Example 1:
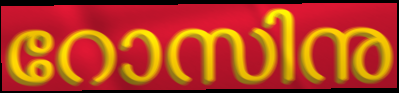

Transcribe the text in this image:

റോസിനു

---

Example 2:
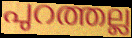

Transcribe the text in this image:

പുറത്തല്ല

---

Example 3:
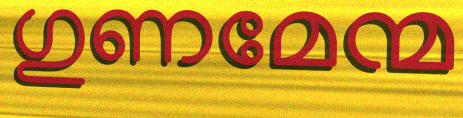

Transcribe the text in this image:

ഗുണമേന്മ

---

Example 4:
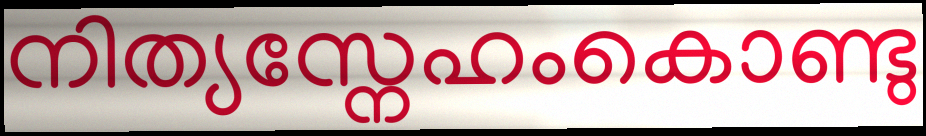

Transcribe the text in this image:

നിത്യസ്നേഹംകൊണ്ടു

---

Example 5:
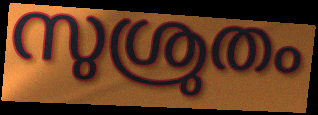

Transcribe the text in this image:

സുശ്രുതം